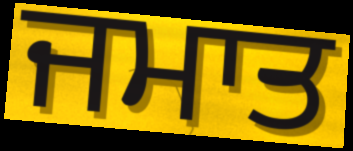
ਜਮਾਤ